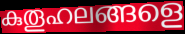
കുതൂഹലങ്ങളെ